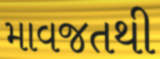
માવજતથી